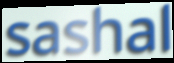
sashal